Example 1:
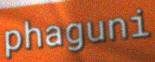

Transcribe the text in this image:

phaguni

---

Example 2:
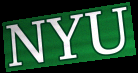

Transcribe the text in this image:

NYU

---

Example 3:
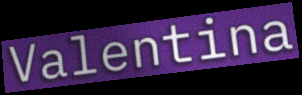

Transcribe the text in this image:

Valentina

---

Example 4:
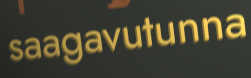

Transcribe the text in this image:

saagavutunna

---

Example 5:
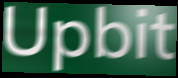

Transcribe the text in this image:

Upbit